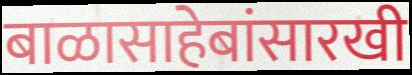
बाळासाहेबांसारखी